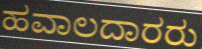
ಹವಾಲದಾರರು